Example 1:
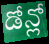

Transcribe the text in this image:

డోన్లో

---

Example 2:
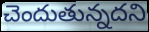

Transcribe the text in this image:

చెందుతున్నదని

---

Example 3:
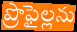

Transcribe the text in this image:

ప్రొఫైల్లను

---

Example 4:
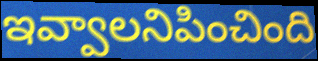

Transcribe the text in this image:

ఇవ్వాలనిపించింది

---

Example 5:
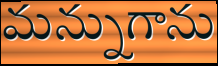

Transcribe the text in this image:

మన్నుగాను